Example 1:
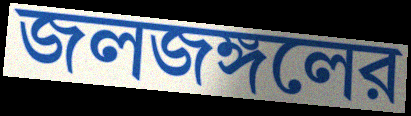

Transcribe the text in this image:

জলজঙ্গলের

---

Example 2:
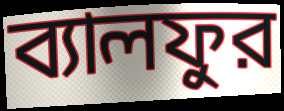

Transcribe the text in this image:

ব্যালফুর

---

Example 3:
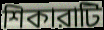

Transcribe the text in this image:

শিকারাটি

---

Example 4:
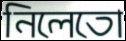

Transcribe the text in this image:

নিলেতো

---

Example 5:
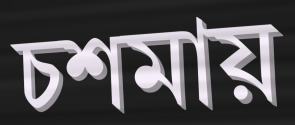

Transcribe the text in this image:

চশমায়